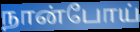
நான்போய்